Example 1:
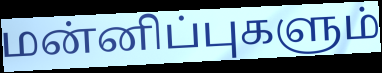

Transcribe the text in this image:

மன்னிப்புகளும்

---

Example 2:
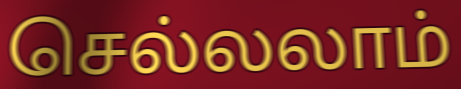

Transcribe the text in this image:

செல்லலாம்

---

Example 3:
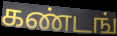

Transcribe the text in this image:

கண்டங்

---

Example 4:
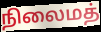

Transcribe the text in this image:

நிலைமத்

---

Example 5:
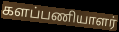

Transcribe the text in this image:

களப்பணியாளர்